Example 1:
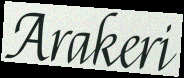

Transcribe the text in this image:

Arakeri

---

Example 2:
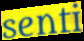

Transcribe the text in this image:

senti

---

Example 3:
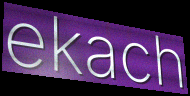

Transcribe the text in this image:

ekach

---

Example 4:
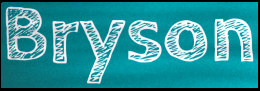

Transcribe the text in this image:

Bryson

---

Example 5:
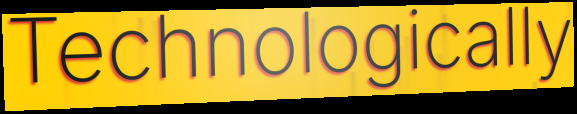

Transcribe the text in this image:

Technologically